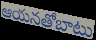
ఆయనతోబాటు